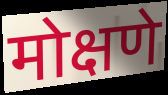
मोक्षणे